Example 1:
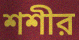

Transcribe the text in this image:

শশীর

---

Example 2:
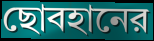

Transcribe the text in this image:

ছোবহানের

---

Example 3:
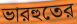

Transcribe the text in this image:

ভারহুতের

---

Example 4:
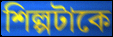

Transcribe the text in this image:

শিল্পটাকে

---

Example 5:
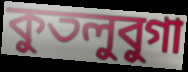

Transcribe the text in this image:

কুতলুবুগা